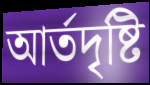
আর্তদৃষ্টি